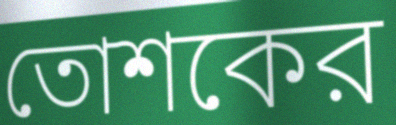
তোশকের